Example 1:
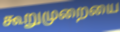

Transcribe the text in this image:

கூறுமுறையை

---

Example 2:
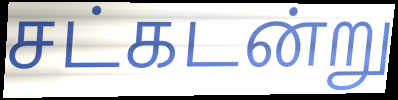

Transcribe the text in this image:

சட்கடன்று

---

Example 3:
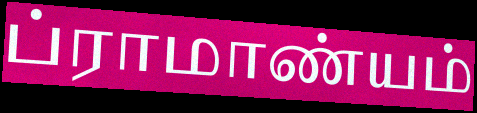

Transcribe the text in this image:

ப்ராமாண்யம்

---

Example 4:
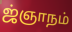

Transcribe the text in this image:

ஜ்ஞாநம்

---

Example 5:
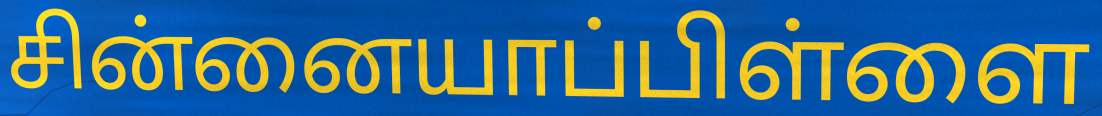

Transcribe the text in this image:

சின்னையாப்பிள்ளை